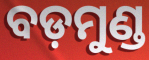
ବଡ଼ମୁଣ୍ଡ